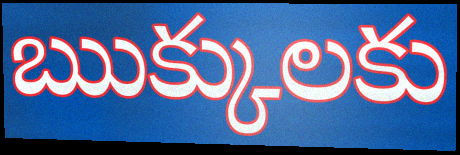
ఋక్కులకు